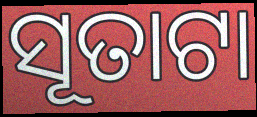
ସୂତାଟା